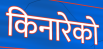
किनारेको